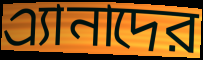
এ্যানাদের